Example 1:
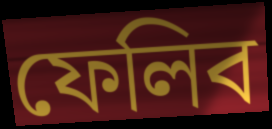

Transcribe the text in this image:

ফেলিব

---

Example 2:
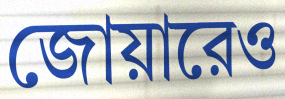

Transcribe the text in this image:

জোয়ারেও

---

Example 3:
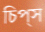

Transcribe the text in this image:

চিপ্‌স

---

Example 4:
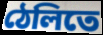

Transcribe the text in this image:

ঠেলিতে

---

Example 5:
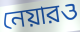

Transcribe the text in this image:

নেয়ারও